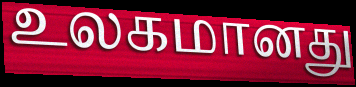
உலகமானது